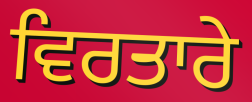
ਵਿਰਤਾਰੇ